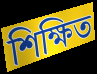
শিক্ষিত